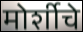
मोर्शीचे